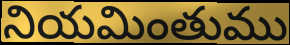
నియమింతుము